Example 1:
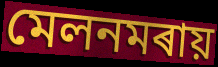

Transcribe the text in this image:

মেলনমৰায়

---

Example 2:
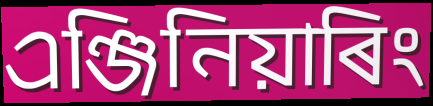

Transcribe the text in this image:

এঞ্জিনিয়াৰিং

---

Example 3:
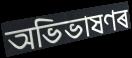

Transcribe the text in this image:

অভিভাষণৰ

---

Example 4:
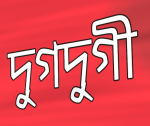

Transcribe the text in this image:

দুগদুগী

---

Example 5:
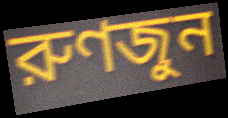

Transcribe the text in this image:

ৰুণজুন